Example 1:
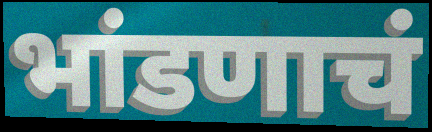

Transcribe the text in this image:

भांडणाचं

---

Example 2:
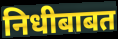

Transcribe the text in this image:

निधीबाबत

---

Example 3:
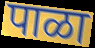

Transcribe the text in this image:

पाळा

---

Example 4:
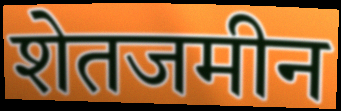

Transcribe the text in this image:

शेतजमीन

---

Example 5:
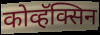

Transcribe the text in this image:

कोव्हॅक्सिन